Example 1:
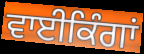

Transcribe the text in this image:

ਵਾਈਕਿੰਗਾਂ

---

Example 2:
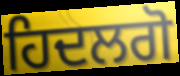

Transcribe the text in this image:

ਹਿਦਲਗੋ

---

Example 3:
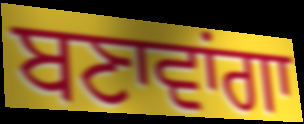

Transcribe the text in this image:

ਬਣਾਵਾਂਗਾ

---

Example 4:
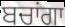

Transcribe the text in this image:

ਬਚਾਂਗਾ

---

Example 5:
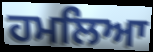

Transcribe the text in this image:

ਹਮਲਿਆ